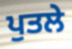
ਪੁਤਲੇ